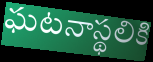
ఘటనాస్థలికి